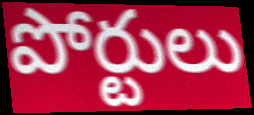
పోర్టులు